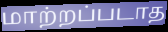
மாற்றப்படாத